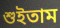
শুইতাম